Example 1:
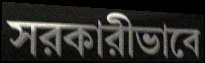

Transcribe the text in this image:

সরকারীভাবে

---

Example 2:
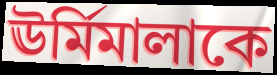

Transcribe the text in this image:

ঊর্মিমালাকে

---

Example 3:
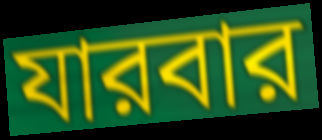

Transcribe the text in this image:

যারবার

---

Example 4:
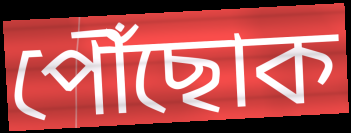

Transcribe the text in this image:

পৌঁছোক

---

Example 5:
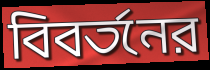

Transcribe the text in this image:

বিবর্তনের